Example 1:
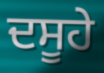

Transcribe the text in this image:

ਦਸੂਹੇ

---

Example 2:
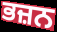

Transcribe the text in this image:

ਭਜ਼ਨ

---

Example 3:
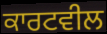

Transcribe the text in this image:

ਕਾਰਟਵੀਲ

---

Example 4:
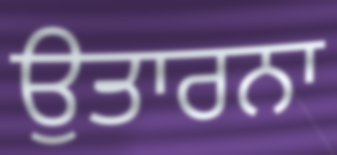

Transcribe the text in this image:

ਉਤਾਰਨਾ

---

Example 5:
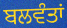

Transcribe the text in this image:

ਬਲਵੰਤਾਂ